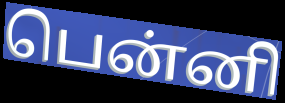
பென்னி